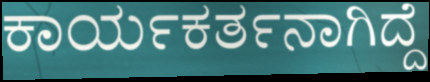
ಕಾರ್ಯಕರ್ತನಾಗಿದ್ದೆ